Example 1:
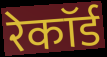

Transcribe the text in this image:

रेकॉर्ड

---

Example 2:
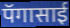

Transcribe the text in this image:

पॅगासाई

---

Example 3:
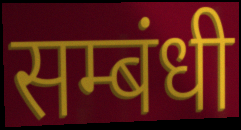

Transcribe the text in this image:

सम्बंधी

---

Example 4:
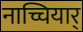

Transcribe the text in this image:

नाच्चियार्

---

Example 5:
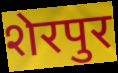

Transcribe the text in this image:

शेरपुर